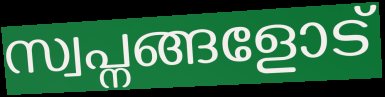
സ്വപ്നങ്ങളോട്